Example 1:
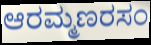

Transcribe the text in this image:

ಆರಮ್ಮಣರಸಂ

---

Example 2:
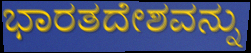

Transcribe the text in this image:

ಭಾರತದೇಶವನ್ನು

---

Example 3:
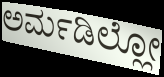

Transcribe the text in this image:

ಅರ್ಮಡಿಲ್ಲೋ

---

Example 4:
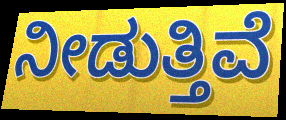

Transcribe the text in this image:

ನೀಡುತ್ತಿವೆ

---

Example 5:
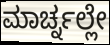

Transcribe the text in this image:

ಮಾರ್ಚ್ನಲ್ಲೇ